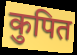
कुपित